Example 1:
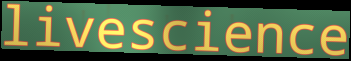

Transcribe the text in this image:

livescience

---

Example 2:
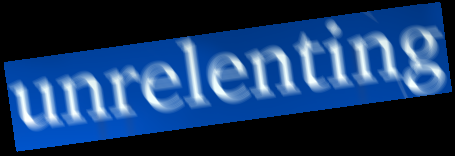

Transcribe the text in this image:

unrelenting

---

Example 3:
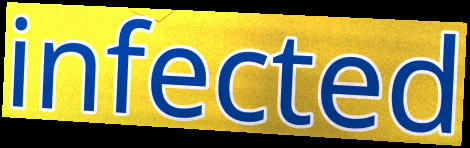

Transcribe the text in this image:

infected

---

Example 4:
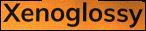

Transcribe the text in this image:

Xenoglossy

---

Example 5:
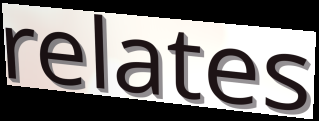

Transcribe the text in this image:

relates